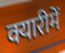
क्यारीमें